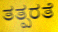
ತತ್ಪರತೆ